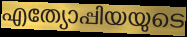
എത്യോപ്പിയയുടെ